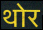
थोर